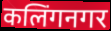
कलिंगनगर